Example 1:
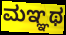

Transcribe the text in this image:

ಮಞ್ಞಥ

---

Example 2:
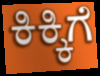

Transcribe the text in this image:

ಕಿಕ್ಕಿಗೆ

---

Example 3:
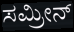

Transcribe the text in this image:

ಸಮ್ರೀನ್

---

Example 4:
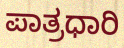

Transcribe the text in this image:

ಪಾತ್ರಧಾರಿ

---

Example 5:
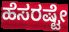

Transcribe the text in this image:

ಹೆಸರಷ್ಟೇ